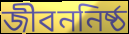
জীবননিষ্ঠ